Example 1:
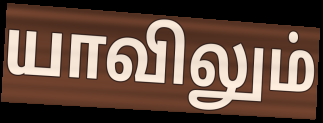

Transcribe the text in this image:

யாவிலும்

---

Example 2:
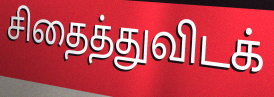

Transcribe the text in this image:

சிதைத்துவிடக்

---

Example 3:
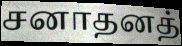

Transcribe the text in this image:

சனாதனத்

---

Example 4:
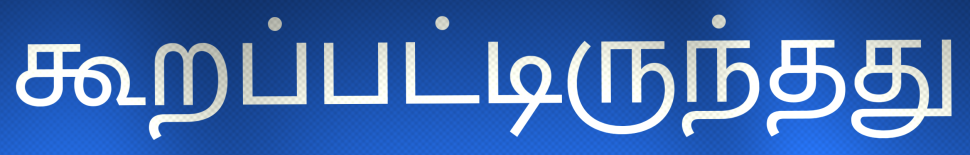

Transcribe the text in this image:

கூறப்பட்டிருந்தது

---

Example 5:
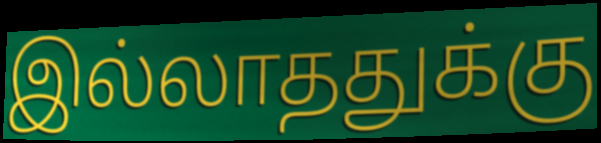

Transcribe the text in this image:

இல்லாததுக்கு